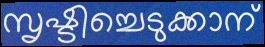
സൃഷ്ടിച്ചെടുക്കാന്